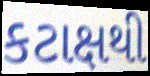
કટાક્ષથી